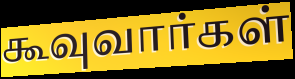
கூவுவார்கள்